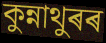
কুন্নাথুৰৰ